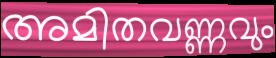
അമിതവണ്ണവും